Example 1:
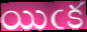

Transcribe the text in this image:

యిఁక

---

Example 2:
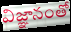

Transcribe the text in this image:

విజ్ఞానంతో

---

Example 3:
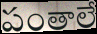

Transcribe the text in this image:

పంతాలే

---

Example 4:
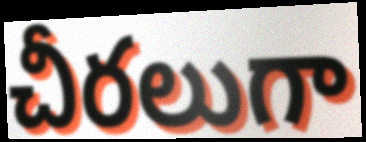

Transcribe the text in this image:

చీరలుగా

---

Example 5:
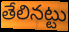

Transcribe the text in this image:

తేలినట్టు